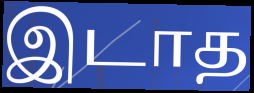
இடாத